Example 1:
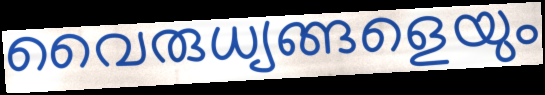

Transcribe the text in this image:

വൈരുധ്യങ്ങളെയും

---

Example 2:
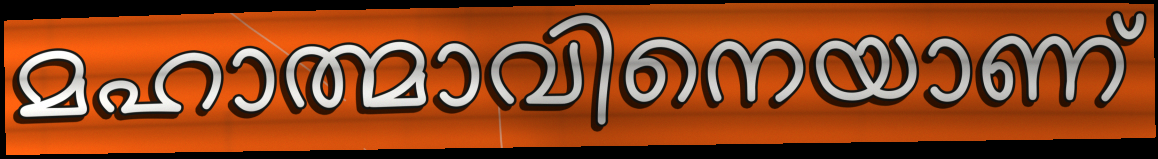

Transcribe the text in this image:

മഹാത്മാവിനെയാണ്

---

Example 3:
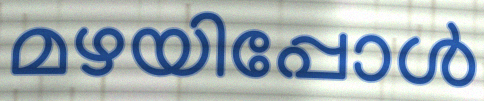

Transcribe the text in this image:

മഴയിപ്പോൾ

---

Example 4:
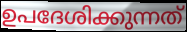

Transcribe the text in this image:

ഉപദേശിക്കുന്നത്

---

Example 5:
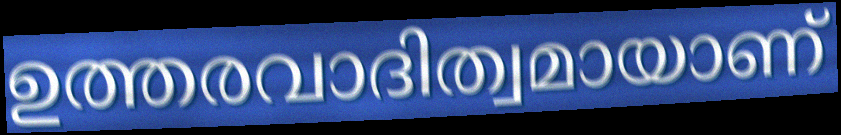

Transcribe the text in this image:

ഉത്തരവാദിത്വമായാണ്